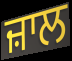
ਜ਼ਾਲ